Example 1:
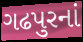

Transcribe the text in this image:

ગઢપુરનાં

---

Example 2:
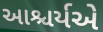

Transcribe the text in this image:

આશ્ચર્યએ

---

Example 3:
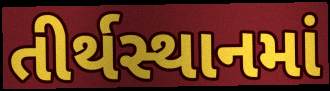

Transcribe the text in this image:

તીર્થસ્થાનમાં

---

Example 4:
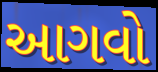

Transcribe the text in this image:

આગવો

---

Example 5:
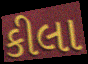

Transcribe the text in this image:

કીલા